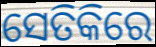
ସେତିକିରେ